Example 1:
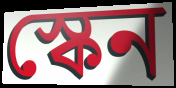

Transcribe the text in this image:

স্কেন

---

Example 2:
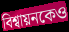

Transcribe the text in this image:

বিশ্বায়নকেও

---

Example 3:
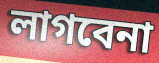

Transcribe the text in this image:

লাগবেনা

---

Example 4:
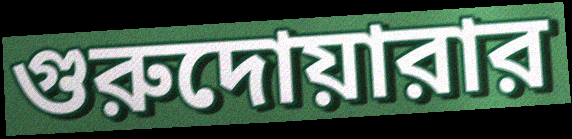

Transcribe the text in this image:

গুরুদোয়ারার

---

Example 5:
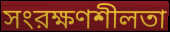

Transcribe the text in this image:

সংরক্ষণশীলতা